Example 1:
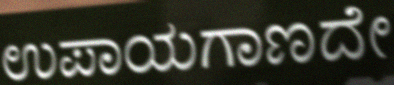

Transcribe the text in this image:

ಉಪಾಯಗಾಣದೇ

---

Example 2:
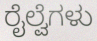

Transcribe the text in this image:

ರೈಲ್ವೆಗಳು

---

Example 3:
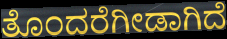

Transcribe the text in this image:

ತೊಂದರೆಗೀಡಾಗಿದೆ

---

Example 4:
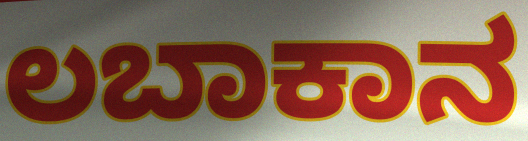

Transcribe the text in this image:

ಲಬಾಕಾನ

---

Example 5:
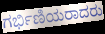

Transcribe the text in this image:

ಗರ್ಭಿಣಿಯರಾದರು